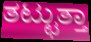
ತಟ್ಟುತ್ತಾ